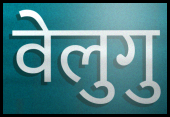
वेलुगु